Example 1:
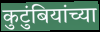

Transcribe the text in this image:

कुटुंबियांच्या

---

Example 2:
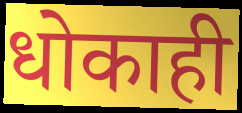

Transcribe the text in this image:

धोकाही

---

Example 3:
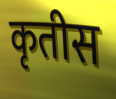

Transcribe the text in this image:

कृतीस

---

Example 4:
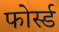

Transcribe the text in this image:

फोर्स्ड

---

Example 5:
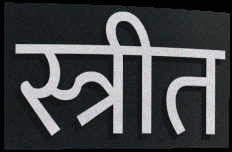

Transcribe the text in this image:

स्त्रीत